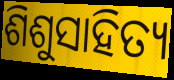
ଶିଶୁସାହିତ୍ୟ